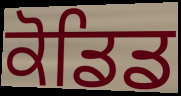
ਕੋਡਿਡ